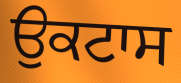
ਉਕਟਾਸ